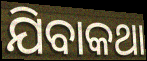
ଯିବାକଥା